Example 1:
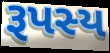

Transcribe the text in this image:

રૂપસ્ય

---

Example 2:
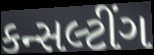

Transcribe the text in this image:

કન્સલ્ટીંગ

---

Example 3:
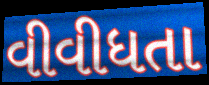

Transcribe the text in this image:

વીવીધતા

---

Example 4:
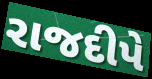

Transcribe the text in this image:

રાજદીપે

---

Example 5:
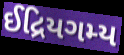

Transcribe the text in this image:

ઈદ્રિયગમ્ય